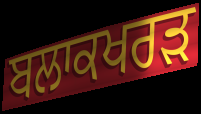
ਬਲਾਕਖਰੜ